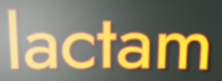
lactam